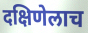
दक्षिणेलाच